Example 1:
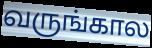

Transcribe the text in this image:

வருங்கால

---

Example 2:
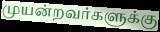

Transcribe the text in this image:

முயன்றவர்களுக்கு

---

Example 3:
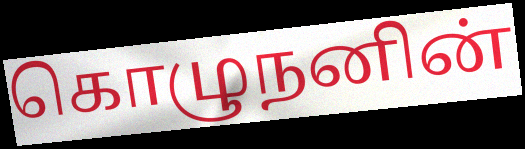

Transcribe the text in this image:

கொழுநனின்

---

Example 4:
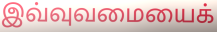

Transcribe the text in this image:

இவ்வுவமையைக்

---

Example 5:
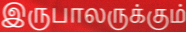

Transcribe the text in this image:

இருபாலருக்கும்